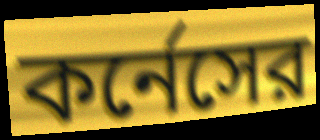
কর্নেসের